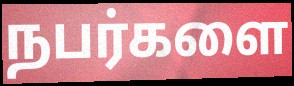
நபர்களை